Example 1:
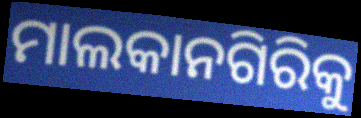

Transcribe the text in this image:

ମାଲକାନଗିରିକୁ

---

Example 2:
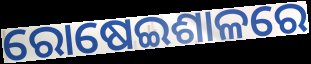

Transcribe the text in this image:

ରୋଷେଇଶାଳରେ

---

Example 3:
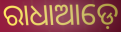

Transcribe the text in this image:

ରାଧାଆଡ଼େ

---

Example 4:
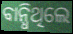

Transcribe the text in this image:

ବାନ୍ଧିଥିଲେ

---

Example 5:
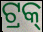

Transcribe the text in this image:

ଟ୍ରକ୍